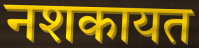
नशकायत